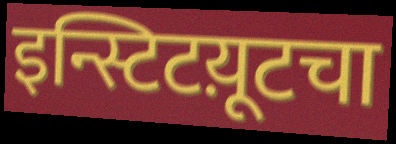
इन्स्टिटय़ूटचा